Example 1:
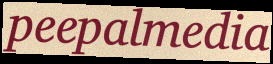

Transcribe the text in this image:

peepalmedia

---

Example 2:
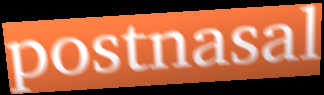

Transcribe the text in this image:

postnasal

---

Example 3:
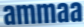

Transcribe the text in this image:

ammaa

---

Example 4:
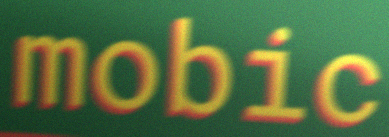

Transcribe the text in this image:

mobic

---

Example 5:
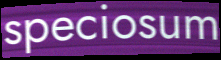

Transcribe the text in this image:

speciosum